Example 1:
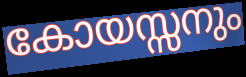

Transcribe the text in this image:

കോയസ്സനും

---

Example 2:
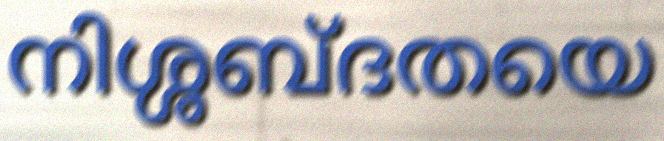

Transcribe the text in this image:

നിശ്ശബ്ദതയെ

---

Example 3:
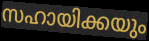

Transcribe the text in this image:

സഹായിക്കയും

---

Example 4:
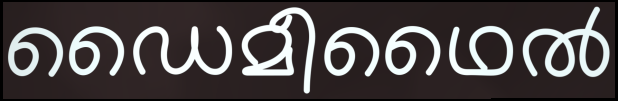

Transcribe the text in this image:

ഡൈമീഥൈൽ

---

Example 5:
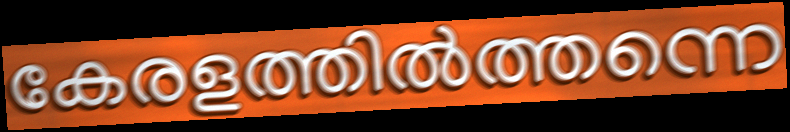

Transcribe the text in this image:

കേരളത്തിൽത്തന്നെ